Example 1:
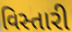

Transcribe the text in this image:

વિસ્તારી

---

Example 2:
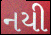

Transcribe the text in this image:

નયી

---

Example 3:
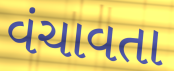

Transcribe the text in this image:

વંચાવતા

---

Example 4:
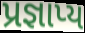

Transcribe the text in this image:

પ્રજ્ઞાપ્ય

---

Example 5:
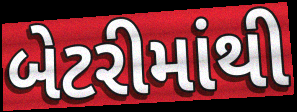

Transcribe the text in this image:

બેટરીમાંથી